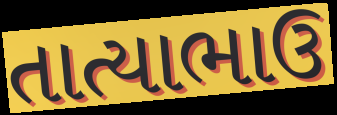
તાત્યાભાઉ